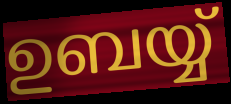
ഉബയ്യ്